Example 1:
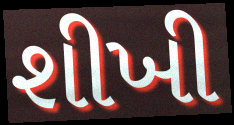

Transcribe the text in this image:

શીખી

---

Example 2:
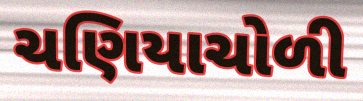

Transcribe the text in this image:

ચણિયાચોળી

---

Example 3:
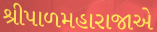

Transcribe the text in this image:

શ્રીપાળમહારાજાએ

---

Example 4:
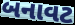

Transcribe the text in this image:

બનાવટ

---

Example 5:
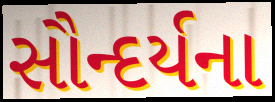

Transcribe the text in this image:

સૌન્દર્યના